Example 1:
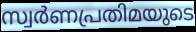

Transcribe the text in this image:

സ്വർണപ്രതിമയുടെ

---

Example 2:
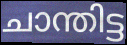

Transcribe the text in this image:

ചാന്തിട്ട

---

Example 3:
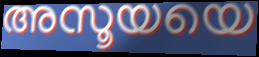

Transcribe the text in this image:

അസൂയയെ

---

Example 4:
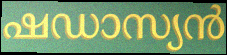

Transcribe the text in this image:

ഷഡാസ്യൻ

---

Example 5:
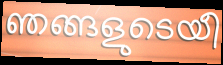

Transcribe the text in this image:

ഞങ്ങളുടെയീ